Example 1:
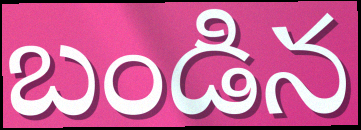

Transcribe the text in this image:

బండిన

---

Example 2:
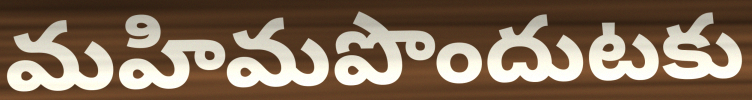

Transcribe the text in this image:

మహిమపొందుటకు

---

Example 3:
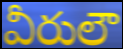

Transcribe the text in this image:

వీరులౌ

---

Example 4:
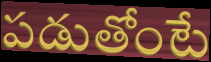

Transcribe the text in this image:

పడుతోంటే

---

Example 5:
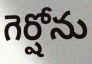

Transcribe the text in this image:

గెర్షోను